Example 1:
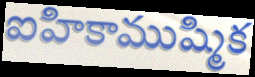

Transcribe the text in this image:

ఐహికాముష్మిక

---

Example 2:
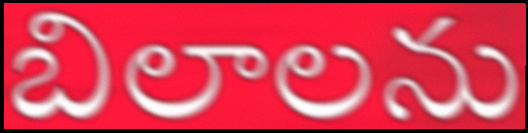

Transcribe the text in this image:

బిలాలను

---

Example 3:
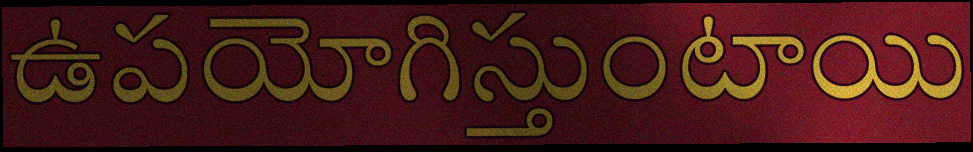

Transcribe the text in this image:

ఉపయోగిస్తుంటాయి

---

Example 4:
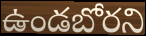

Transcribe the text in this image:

ఉండబోరని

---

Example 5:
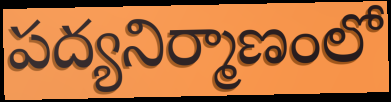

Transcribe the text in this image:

పద్యనిర్మాణంలో